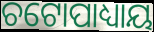
ଚଟୋପାଧ୍ୟାୟ